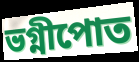
ভগ্নীপোত